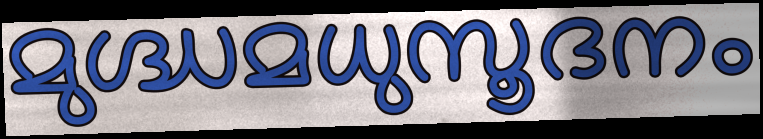
മുഗ്ദ്ധമധുസൂദനം